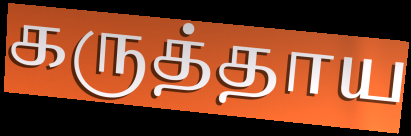
கருத்தாய